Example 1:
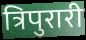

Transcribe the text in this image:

त्रिपुरारी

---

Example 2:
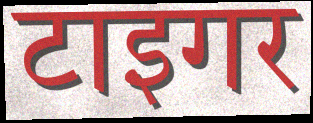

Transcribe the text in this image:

टाइगर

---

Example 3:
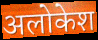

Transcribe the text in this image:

अलोकेश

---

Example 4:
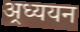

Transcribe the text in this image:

अ्रध्ययन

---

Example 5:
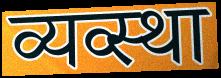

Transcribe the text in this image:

व्यव्स्था